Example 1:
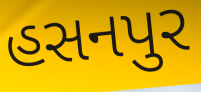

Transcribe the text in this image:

હસનપુર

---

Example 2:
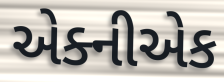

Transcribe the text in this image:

એક્નીએક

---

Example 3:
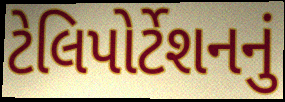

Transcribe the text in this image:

ટેલિપોર્ટેશનનું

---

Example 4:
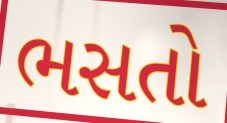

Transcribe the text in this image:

ભસતો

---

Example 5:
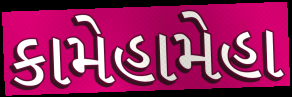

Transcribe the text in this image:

કામેહામેહા